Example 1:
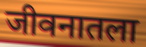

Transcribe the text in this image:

जीवनातला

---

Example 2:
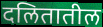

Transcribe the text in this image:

दलितातील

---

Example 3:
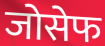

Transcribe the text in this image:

जोसेफ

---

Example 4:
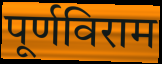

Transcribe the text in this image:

पूर्णविराम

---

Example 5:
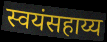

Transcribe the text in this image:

स्वयंसहाय्य